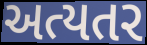
અત્યતર